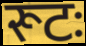
रूटः